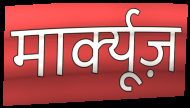
मार्क्यूज़